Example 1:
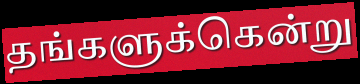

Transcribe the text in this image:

தங்களுக்கென்று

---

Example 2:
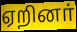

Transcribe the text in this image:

ஏறினர்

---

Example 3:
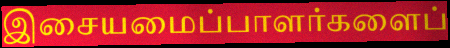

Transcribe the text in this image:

இசையமைப்பாளர்களைப்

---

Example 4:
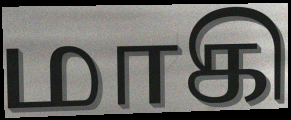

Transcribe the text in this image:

மாகி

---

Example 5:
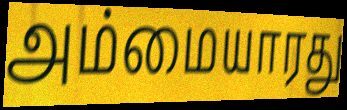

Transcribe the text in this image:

அம்மையாரது